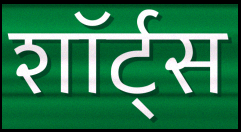
शॉर्ट्स